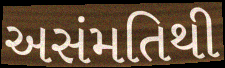
અસંમતિથી